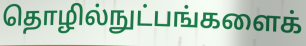
தொழில்நுட்பங்களைக்